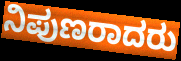
ನಿಪುಣರಾದರು